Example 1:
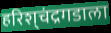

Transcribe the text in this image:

हरिश्चंद्रगडाला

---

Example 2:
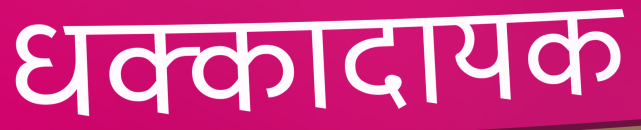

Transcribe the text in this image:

धक्‍कादायक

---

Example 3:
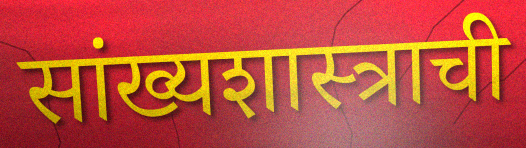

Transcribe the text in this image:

सांख्यशास्त्राची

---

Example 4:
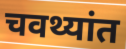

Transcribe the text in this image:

चवथ्यांत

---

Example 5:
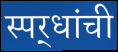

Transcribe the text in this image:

स्पर्धांची